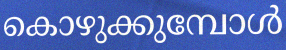
കൊഴുക്കുമ്പോൾ